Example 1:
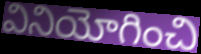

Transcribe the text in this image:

వినియోగించి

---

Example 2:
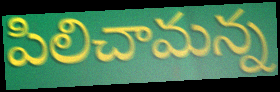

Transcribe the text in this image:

పిలిచామన్న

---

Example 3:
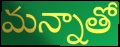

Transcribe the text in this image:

మన్నాతో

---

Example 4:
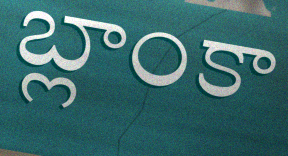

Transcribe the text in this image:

బ్లాంకా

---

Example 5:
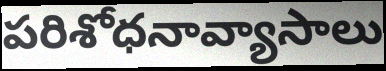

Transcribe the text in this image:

పరిశోధనావ్యాసాలు